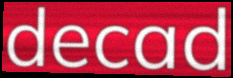
decad